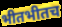
भीतभीतच